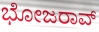
ಭೋಜರಾವ್